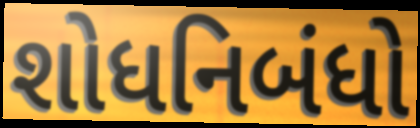
શોધનિબંધો